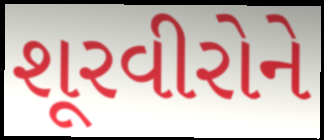
શૂરવીરોને